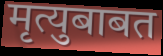
मृत्युबाबत